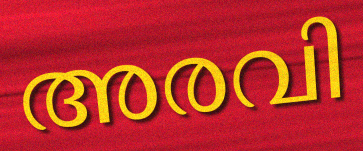
അരവി